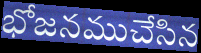
భోజనముచేసిన